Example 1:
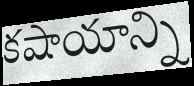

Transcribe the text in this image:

కషాయాన్ని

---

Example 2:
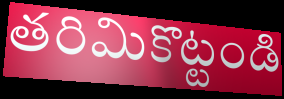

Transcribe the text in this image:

తరిమికొట్టండి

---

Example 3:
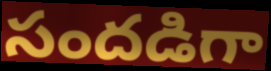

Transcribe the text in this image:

సందడిగా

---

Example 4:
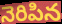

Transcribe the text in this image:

నెరిపిన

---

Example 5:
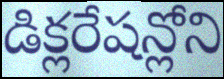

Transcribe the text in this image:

డిక్లరేషన్లోని